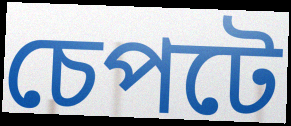
চেপটে